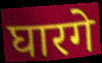
घारगे